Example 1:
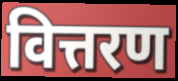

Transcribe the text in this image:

वित्तरण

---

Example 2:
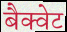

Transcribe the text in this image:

बैक्वेट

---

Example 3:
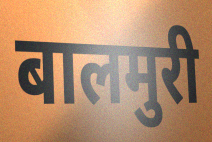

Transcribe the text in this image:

बालमुरी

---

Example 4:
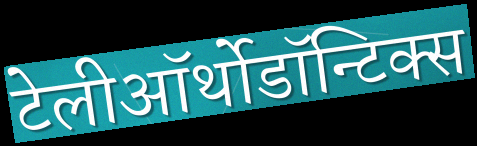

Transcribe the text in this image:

टेलीऑर्थोडॉन्टिक्स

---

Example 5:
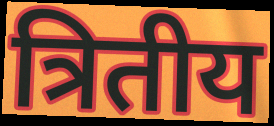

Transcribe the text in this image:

त्रितीय